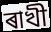
ৰাখী